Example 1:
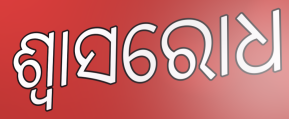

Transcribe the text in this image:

ଶ୍ୱାସରୋଧ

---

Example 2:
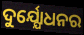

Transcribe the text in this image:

ଦୁର୍ଯ୍ଯୋଧନର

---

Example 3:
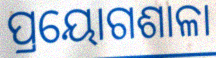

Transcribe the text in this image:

ପ୍ରୟୋଗଶାଳା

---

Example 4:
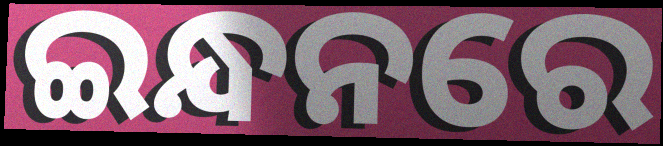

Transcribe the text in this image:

ଇନ୍ଧନରେ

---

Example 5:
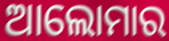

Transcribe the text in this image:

ଆଲୋମାର